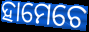
ହାମେଚେ